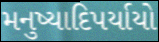
મનુષ્યાદિપર્યાયો